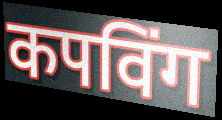
कपविंग